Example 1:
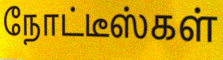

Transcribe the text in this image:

நோட்டீஸ்கள்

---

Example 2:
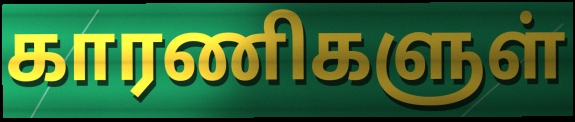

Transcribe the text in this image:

காரணிகளுள்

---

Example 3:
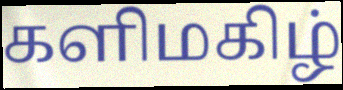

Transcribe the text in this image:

களிமகிழ்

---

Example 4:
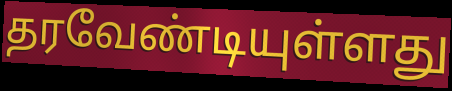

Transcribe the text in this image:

தரவேண்டியுள்ளது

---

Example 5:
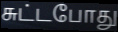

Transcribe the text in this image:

சுட்டபோது